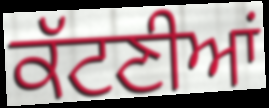
ਕੱਟਣੀਆਂ